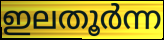
ഇലതൂർന്ന